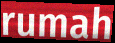
rumah